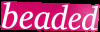
beaded